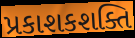
પ્રકાશકશક્તિ